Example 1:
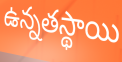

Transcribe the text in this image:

ఉన్నతస్థాయి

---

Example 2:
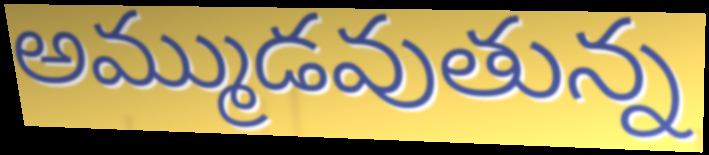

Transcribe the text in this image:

అమ్ముడవుతున్న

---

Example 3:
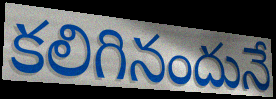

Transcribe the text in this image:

కలిగినందునే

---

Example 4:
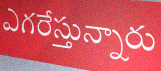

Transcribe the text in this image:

ఎగరేస్తున్నారు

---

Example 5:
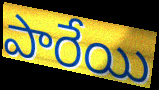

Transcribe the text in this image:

పారేయి